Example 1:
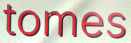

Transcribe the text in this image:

tomes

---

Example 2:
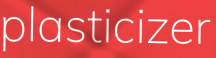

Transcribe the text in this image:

plasticizer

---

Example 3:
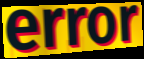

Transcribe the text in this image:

error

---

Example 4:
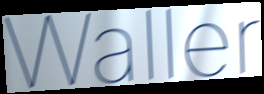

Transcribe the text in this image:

Waller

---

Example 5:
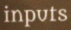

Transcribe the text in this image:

inputs